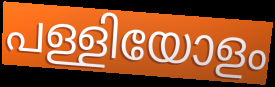
പള്ളിയോളം